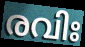
രവിഃ